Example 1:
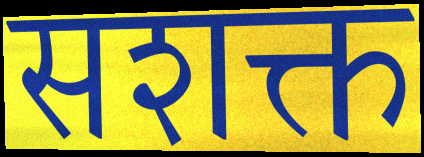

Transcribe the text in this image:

सशक्त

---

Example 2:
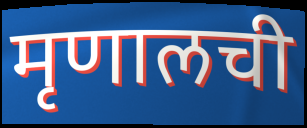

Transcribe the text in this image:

मृणालची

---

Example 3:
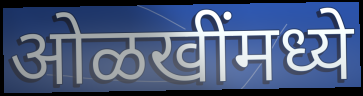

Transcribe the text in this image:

ओळखींमध्ये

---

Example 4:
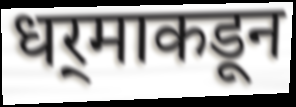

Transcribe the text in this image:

धर्माकडून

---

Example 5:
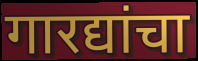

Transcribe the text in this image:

गारद्यांचा